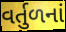
વર્તુળનાં